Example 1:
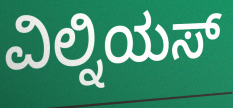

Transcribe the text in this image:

ವಿಲ್ನಿಯಸ್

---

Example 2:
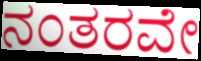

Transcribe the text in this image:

ನಂತರವೇ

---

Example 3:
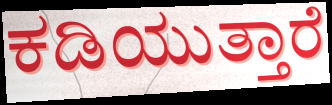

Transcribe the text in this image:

ಕಡಿಯುತ್ತಾರೆ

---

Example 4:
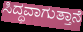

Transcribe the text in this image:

ಸಿದ್ಧವಾಗುತ್ತಾನೆ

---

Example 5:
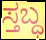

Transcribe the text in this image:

ಸ್ತಬ್ಧ